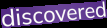
discovered